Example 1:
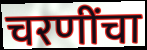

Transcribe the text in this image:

चरणींचा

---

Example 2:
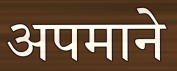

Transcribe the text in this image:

अपमाने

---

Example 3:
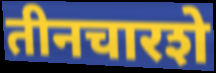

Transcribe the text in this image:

तीनचारशे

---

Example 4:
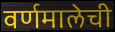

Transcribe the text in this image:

वर्णमालेची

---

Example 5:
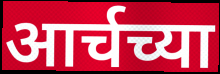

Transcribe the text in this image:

आर्चच्या